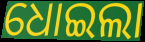
ଧୋଇଲା